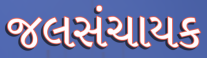
જલસંચાયક